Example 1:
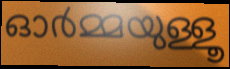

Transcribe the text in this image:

ഓർമ്മയുള്ളൂ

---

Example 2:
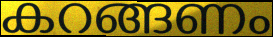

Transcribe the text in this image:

കറങ്ങണം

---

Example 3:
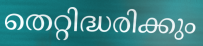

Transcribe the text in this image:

തെറ്റിദ്ധരിക്കും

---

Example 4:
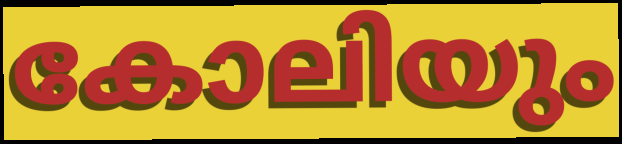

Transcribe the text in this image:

കോലിയും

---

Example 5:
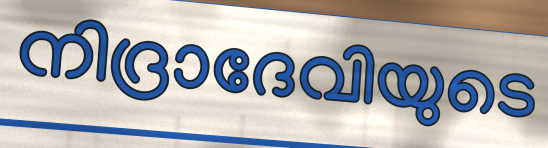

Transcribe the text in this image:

നിദ്രാദേവിയുടെ